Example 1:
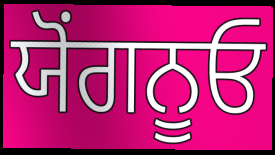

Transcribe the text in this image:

ਯੋਂਗਨੂਓ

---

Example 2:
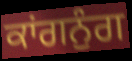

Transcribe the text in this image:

ਕਾਂਗਨੁੰਗ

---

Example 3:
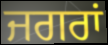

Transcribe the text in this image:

ਜਗਰਾਂ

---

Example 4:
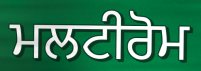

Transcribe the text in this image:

ਮਲਟੀਰੋਮ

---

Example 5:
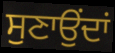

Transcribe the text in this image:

ਸੁਣਾਉਂਦਾਂ